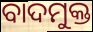
ବାଦମୁକ୍ତ